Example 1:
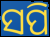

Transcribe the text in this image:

ସପି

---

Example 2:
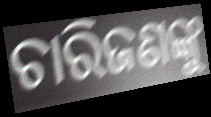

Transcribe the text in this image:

ଚାରିଜଣଙ୍କୁ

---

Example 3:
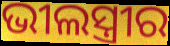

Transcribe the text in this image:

ଭୀଲସ୍ତ୍ରୀର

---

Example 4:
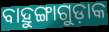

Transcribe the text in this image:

ବାହୁଙ୍ଗାଗୁଡ଼ାକ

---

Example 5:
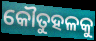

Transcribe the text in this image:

କୌତୁହଳକୁ